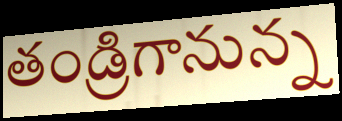
తండ్రిగానున్న